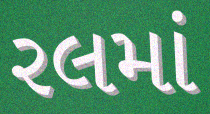
રલમાં